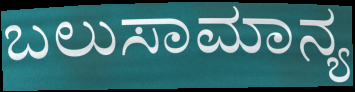
ಬಲುಸಾಮಾನ್ಯ